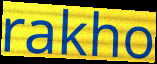
rakho